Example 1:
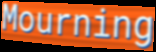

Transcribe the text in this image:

Mourning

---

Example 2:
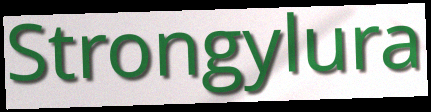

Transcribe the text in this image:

Strongylura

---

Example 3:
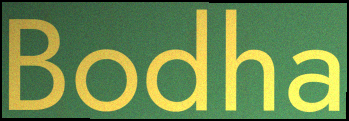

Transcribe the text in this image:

Bodha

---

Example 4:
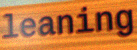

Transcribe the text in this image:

leaning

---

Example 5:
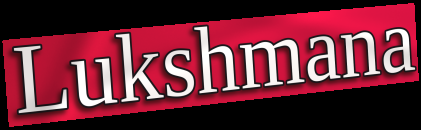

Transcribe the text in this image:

Lukshmana